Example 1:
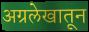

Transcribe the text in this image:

अग्रलेखातून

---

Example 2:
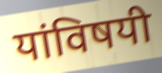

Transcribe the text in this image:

यांविषयी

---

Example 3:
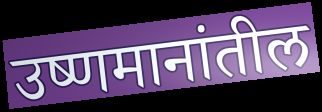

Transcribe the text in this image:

उष्णमानांतील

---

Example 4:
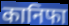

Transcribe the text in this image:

कानिफा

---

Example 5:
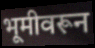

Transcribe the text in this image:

भूमीवरून